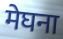
मेघना